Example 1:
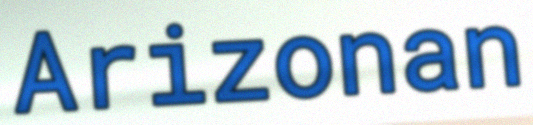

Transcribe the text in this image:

Arizonan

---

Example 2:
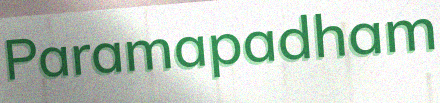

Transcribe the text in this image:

Paramapadham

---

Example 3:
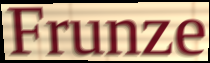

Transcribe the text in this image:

Frunze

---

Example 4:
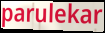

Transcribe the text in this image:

parulekar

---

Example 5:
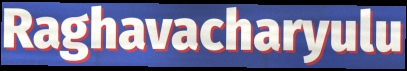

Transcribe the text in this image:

Raghavacharyulu